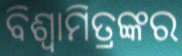
ବିଶ୍ୱାମିତ୍ରଙ୍କର